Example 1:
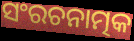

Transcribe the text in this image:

ସଂରଚନାତ୍ମକ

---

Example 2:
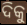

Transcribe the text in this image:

ଦିକୁ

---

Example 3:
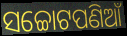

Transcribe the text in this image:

ସଚ୍ଚୋଟପଣିଆଁ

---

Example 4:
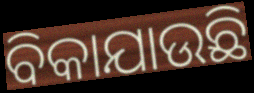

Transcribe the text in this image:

ବିକାଯାଉଛି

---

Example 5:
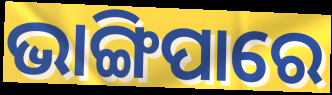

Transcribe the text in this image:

ଭାଙ୍ଗିପାରେ